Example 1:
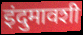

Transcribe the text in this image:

इंदुमावशी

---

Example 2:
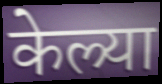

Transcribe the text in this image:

केल्या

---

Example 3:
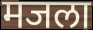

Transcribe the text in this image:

मजला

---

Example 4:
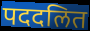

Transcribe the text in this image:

पददलित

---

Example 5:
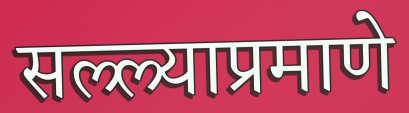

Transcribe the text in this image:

सल्ल्याप्रमाणे